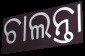
ଚାଲନ୍ତା